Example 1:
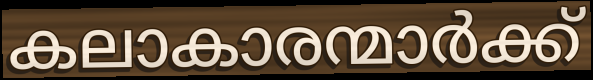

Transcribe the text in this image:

കലാകാരന്മാർക്ക്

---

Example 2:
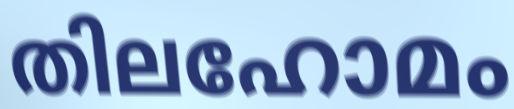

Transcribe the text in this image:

തിലഹോമം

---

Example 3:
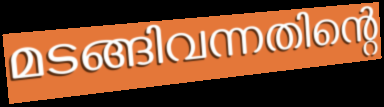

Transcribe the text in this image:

മടങ്ങിവന്നതിന്റെ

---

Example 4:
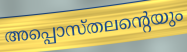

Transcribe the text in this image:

അപ്പൊസ്തലന്റെയും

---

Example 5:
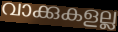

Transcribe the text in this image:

വാക്കുകളല്ല